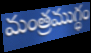
మంత్రముగ్ధం